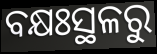
ବକ୍ଷଃସ୍ଥଳରୁ